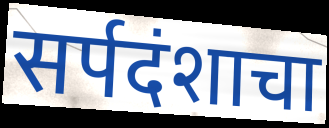
सर्पदंशाचा